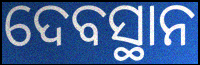
ଦେବସ୍ଥାନ